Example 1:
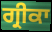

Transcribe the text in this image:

ਗ੍ਰੀਕਾ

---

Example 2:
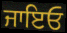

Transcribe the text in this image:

ਜਾਇਓ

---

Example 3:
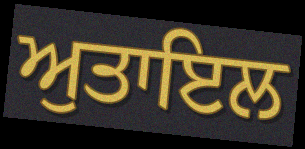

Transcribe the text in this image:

ਅੁਤਾਇਲ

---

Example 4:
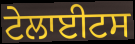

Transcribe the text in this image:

ਟੇਲਾਈਟਸ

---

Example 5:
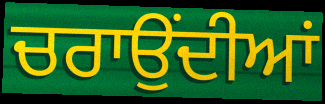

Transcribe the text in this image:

ਚਰਾਉਂਦੀਆਂ